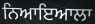
ਨਿਆਇਆਲਾ